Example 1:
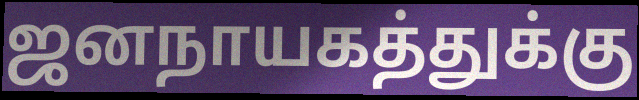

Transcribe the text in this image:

ஜனநாயகத்துக்கு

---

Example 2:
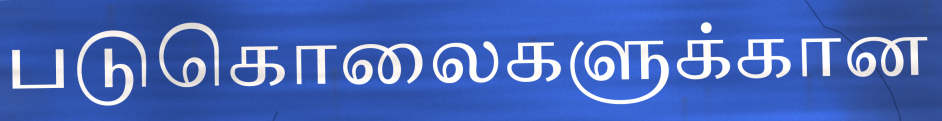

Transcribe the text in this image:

படுகொலைகளுக்கான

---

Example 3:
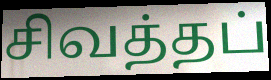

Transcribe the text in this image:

சிவத்தப்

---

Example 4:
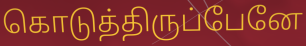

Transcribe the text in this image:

கொடுத்திருப்பேனே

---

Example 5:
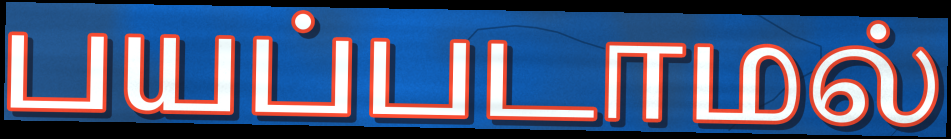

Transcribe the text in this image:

பயப்படாமல்